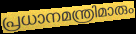
പ്രധാനമന്ത്രിമാരും